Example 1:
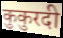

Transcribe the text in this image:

कुकुरदी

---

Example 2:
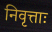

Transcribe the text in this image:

निवृत्ताः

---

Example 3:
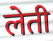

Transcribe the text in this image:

लेती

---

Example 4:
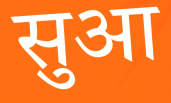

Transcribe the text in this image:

सुआ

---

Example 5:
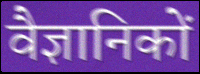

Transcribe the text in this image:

वैज्ञानिकों